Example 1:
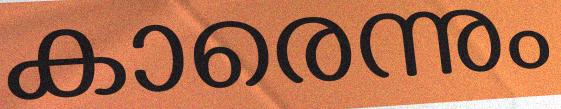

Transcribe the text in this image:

കാരെന്നും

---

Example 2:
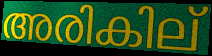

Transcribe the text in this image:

അരികില്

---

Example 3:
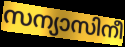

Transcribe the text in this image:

സന്യാസിനീ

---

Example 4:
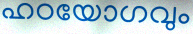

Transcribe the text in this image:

ഹഠയോഗവും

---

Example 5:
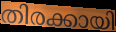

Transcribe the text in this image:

തിരക്കായി